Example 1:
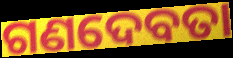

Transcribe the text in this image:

ଗଣଦେବତା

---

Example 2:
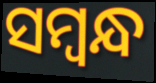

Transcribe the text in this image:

ସମ୍ବନ୍ଧ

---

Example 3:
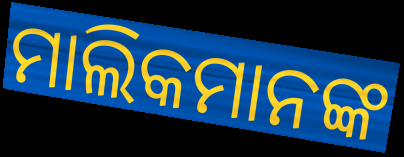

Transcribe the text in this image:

ମାଲିକମାନଙ୍କ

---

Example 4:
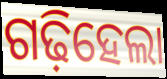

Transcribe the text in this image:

ଗଢ଼ିହେଲା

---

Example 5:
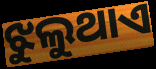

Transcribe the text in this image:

ଝୁଲୁଥାଏ